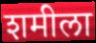
शमीला